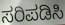
ಸರಿಪಡಿಸಿ